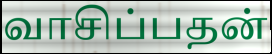
வாசிப்பதன்